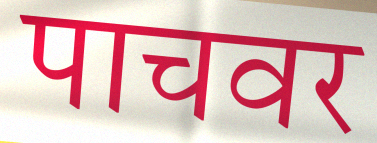
पाचवर